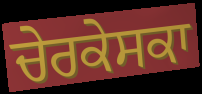
ਚੇਰਕੇਸਕਾ